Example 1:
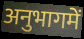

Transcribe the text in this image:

अनुभागमें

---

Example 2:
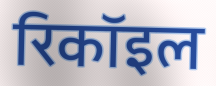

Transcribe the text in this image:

रिकॉइल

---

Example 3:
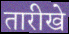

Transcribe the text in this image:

तारीखे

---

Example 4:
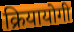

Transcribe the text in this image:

क्रियायोगी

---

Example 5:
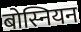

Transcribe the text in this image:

बोस्नियन